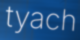
tyach